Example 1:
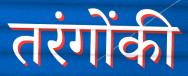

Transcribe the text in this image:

तरंगोंकी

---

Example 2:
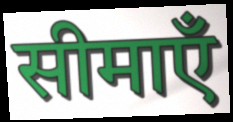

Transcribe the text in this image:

सीमाएँ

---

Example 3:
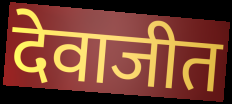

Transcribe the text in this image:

देवाजीत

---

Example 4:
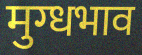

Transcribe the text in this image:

मुग्धभाव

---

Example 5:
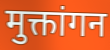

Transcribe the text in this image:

मुक्तांगन